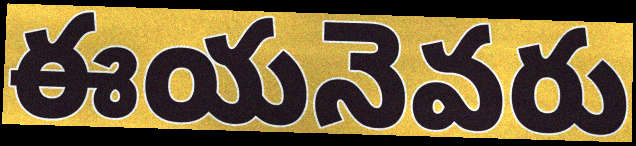
ఈయనెవరు